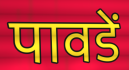
पावडें